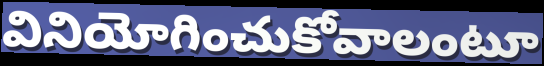
వినియోగించుకోవాలంటూ